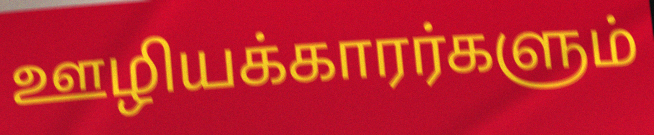
ஊழியக்காரர்களும்